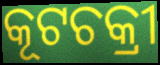
କୂଟଚକ୍ରୀ